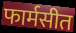
फार्मसीत